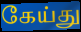
கேய்து